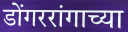
डोंगररांगाच्या